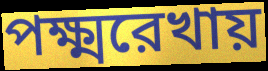
পক্ষ্মরেখায়